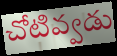
చోటివ్వడు